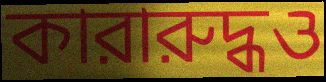
কারারুদ্ধও